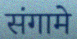
संगामे